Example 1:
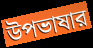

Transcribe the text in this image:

উপভাষার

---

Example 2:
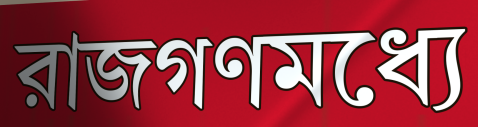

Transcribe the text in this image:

রাজগণমধ্যে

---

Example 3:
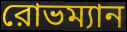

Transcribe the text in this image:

রোভম্যান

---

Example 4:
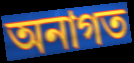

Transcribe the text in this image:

অনাগত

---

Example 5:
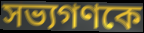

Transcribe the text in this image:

সভ্যগণকে